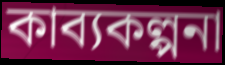
কাব্যকল্পনা